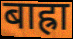
बाह्रा